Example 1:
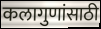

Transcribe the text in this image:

कलागुणांसाठी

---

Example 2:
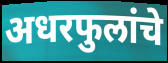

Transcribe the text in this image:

अधरफुलांचे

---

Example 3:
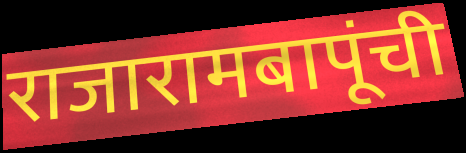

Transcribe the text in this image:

राजारामबापूंची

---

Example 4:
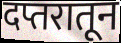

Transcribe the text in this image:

दप्तरातून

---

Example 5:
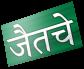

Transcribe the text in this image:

जैतचे